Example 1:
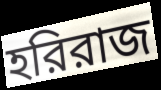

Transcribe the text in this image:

হরিরাজ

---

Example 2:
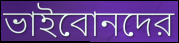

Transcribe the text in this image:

ভাইবোনদের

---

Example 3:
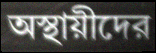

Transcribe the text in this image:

অস্থায়ীদের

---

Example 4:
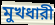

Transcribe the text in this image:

মুখধারী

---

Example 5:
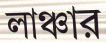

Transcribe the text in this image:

লাঞ্চার